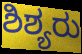
ಶಿಶ್ಯರು